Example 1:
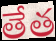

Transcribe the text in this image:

తేత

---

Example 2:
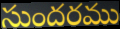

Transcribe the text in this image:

సుందరము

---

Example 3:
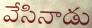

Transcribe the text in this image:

వేసినాడు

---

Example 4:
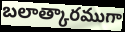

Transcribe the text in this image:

బలాత్కారముగా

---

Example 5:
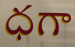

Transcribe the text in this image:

ధగా